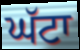
ਘੱਟਾ